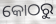
କୋଠରୁ